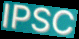
IPSC